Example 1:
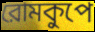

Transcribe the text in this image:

রোমকুপে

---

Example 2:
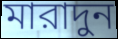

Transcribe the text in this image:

মারাদুন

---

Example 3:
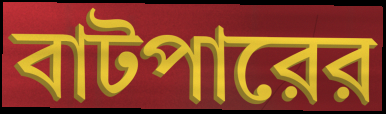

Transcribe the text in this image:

বাটপারের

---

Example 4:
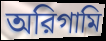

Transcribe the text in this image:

অরিগামি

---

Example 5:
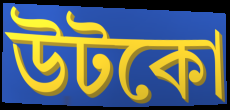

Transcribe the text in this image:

উটকো